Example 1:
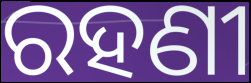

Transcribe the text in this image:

ରହଣୀ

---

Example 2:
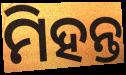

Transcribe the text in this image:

ମିହନ୍ତ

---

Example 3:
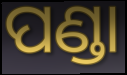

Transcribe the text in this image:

ପଣ୍ଡା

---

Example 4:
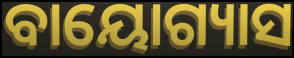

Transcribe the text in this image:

ବାୟୋଗ୍ୟାସ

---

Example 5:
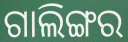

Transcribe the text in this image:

ଗାଲିଙ୍ଗର